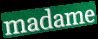
madame